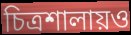
চিত্রশালায়ও